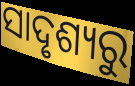
ସାଦୃଶ୍ୟରୁ